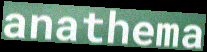
anathema